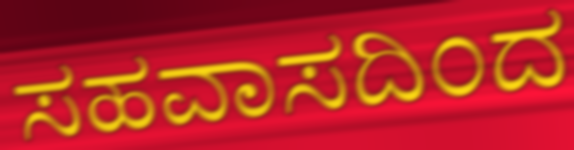
ಸಹವಾಸದಿಂದ